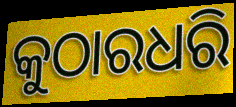
କୁଠାରଧରି